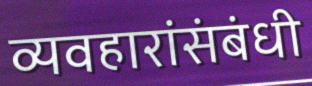
व्यवहारांसंबंधी